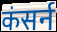
कंसर्न